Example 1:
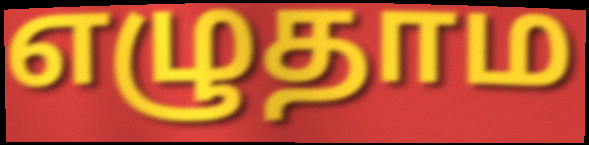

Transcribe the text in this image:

எழுதாம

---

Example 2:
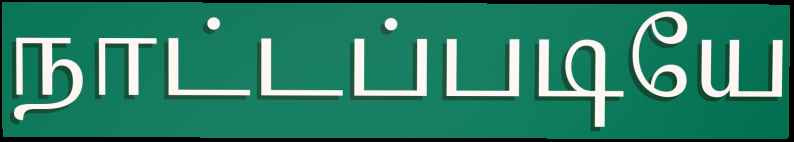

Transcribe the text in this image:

நாட்டப்படியே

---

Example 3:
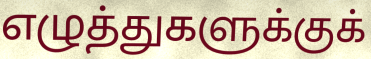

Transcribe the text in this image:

எழுத்துகளுக்குக்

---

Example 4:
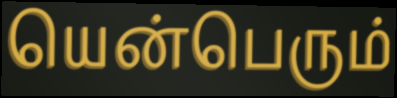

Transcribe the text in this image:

யென்பெரும்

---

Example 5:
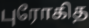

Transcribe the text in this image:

புரோகித